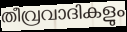
തീവ്രവാദികളും